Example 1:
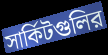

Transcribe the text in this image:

সার্কিটগুলির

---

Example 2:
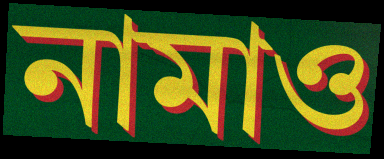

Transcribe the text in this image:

নামাও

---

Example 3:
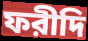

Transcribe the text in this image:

ফরীদি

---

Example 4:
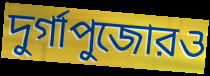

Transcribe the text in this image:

দুর্গাপুজোরও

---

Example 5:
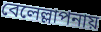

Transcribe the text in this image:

বেলেল্লাপনায়